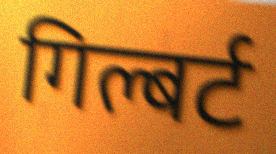
गिल्बर्ट